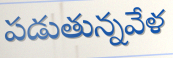
పడుతున్నవేళ